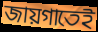
জায়গাতেই